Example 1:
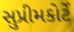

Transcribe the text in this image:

સુપ્રીમકોર્ટે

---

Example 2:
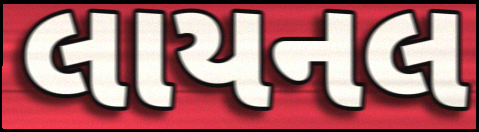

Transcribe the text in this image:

લાયનલ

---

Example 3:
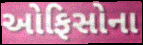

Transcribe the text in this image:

ઓફિસોના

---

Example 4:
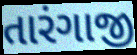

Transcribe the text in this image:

તારંગાજી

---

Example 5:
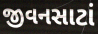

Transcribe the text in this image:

જીવનસાટાં